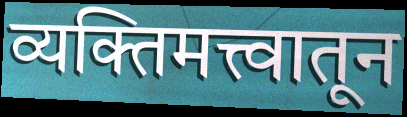
व्यक्तिमत्त्वातून